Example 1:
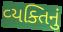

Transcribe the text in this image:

વ્‍યક્તિનું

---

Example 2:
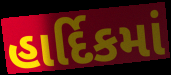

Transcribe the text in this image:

હાર્દિકમાં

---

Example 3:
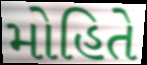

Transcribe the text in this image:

મોહિતે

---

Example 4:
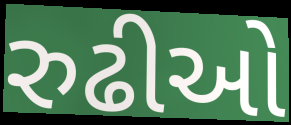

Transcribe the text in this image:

રુઢીઓ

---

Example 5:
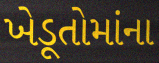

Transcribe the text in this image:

ખેડૂતોમાંના